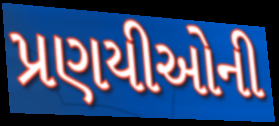
પ્રણયીઓની